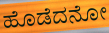
ಹೊಡೆದನೋ